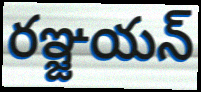
రఞ్జయన్